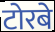
टोरबे